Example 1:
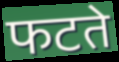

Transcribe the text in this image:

फटते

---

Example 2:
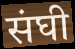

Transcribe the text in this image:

संघी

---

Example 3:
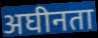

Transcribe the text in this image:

अघीनता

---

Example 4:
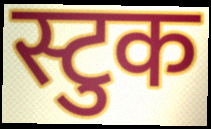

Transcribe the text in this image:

स्टुक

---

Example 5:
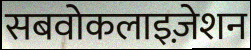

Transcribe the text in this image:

सबवोकलाइज़ेशन